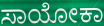
ಸಾಯೋಕಾ